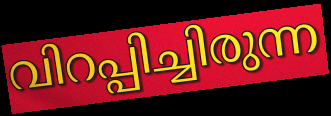
വിറപ്പിച്ചിരുന്ന